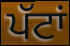
ਪੱਟਾਂ